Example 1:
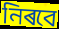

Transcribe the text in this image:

নিৰবে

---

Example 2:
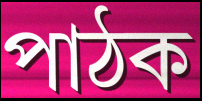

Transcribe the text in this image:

পাঠক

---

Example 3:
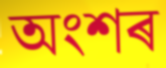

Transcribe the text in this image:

অংশৰ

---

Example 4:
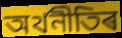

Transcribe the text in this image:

অৰ্থনীতিৰ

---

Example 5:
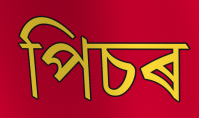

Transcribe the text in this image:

পিচৰ